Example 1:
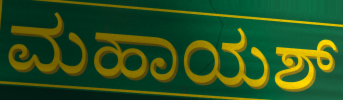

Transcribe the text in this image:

ಮಹಾಯಶ್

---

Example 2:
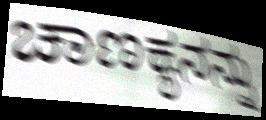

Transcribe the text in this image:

ಚಾಣಕ್ಯನನ್ನು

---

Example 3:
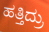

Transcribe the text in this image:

ಹತ್ತಿದ್ರು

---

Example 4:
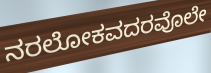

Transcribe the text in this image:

ನರಲೋಕವದರವೊಲೇ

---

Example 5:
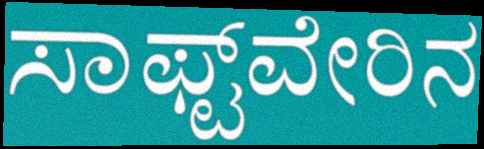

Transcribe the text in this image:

ಸಾಫ್ಟ್‌ವೇರಿನ